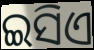
ଇସିଏ